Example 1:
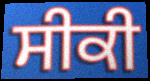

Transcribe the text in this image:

ਸੀਕੀ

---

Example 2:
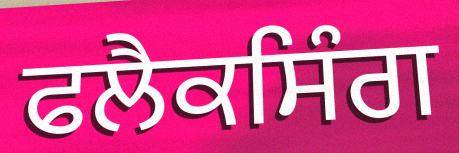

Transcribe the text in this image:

ਫਲੈਕਸਿੰਗ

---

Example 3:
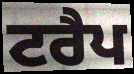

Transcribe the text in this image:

ਟਰੈਪ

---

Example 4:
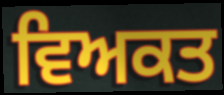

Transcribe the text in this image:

ਵਿਅਕਤ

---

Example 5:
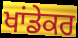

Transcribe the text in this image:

ਖਾਂਡੇਕਰ